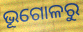
ଭୂଗୋଳରୁ